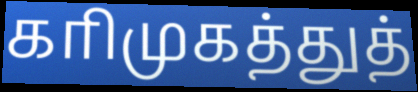
கரிமுகத்துத்